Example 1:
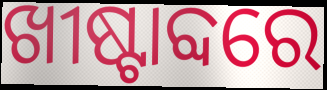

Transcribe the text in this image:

ଖୀଷ୍ଟାବ୍ଦରେ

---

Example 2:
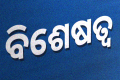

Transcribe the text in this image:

ବିଶେଷତ୍ଵ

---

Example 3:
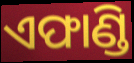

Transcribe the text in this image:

ଏଫାଣ୍ଡି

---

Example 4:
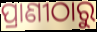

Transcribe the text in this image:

ପ୍ରାଣୀଠାରୁ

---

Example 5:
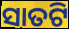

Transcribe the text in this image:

ସାତଟି